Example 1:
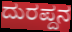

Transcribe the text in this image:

ದುರಪ್ದನ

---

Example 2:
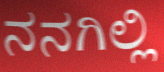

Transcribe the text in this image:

ನನಗಿಲ್ಲಿ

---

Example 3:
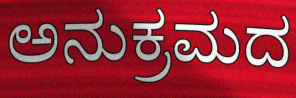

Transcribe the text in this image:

ಅನುಕ್ರಮದ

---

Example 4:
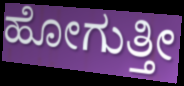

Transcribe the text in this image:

ಹೋಗುತ್ತೀ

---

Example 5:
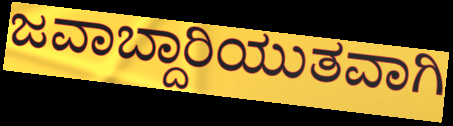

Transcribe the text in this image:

ಜವಾಬ್ದಾರಿಯುತವಾಗಿ